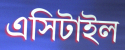
এসিটাইল